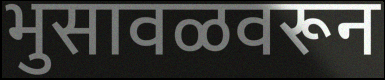
भुसावळवरून